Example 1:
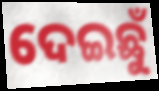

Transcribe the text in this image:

ଦେଇଛୁଁ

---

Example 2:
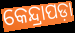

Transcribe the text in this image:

କେନ୍ଦ୍ରାପଡ଼ା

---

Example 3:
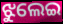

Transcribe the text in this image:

ଝୁଲେଇ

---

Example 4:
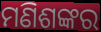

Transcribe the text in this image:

ମଣିଶଙ୍କର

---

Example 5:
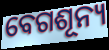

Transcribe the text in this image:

ବେଗଶୂନ୍ୟ